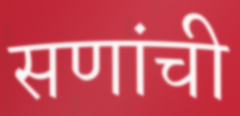
सणांची